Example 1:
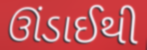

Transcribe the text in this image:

ઊંડાઈથી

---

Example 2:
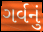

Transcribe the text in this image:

ગર્વનું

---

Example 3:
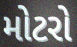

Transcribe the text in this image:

મોટરો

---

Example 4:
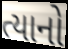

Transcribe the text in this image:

ત્યાનો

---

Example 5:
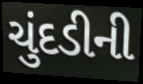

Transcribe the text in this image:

ચુંદડીની